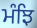
ਮੰਝਿ